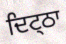
ਦਿਟ੍ਠਾ